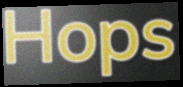
Hops